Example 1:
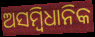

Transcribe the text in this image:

ଅସମ୍ବିଧାନିକ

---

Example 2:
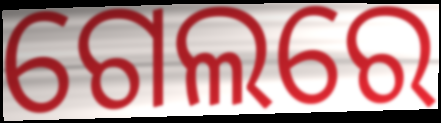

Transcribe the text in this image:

ଗେଲରେ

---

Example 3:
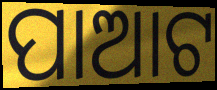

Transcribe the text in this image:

ପାଆଟ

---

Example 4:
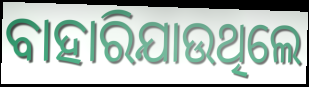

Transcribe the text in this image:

ବାହାରିଯାଉଥିଲେ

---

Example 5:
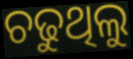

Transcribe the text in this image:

ଚଢୁଥିଲୁ